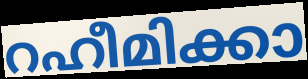
റഹീമിക്കാ